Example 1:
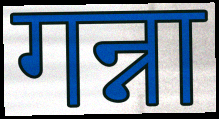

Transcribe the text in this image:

गन्ना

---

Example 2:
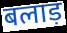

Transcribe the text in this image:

बलाड़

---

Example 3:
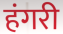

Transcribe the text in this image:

हंगरी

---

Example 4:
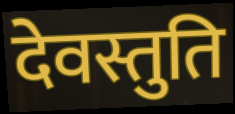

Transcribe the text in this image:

देवस्तुति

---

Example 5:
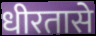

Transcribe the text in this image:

धीरतासे